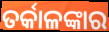
ତର୍କାଳଙ୍କାର